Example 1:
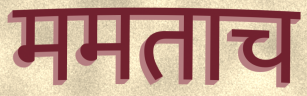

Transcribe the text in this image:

ममताच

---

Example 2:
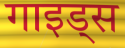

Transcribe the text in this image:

गाइड्स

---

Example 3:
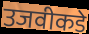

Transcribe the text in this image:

उजवीकडे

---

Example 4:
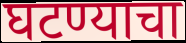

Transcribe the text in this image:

घटण्याचा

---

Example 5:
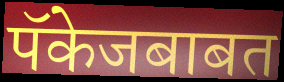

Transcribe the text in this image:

पॅकेजबाबत